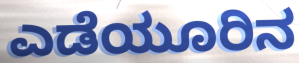
ಎಡೆಯೂರಿನ